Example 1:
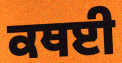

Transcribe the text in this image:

ਕਥਈ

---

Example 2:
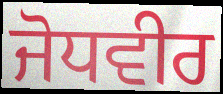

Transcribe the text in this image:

ਜੋਧਵੀਰ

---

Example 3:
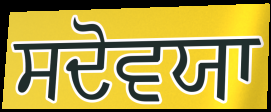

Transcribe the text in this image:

ਸਦੋਵਯਾ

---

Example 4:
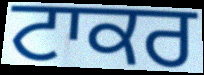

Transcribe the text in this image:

ਟਾਕਰ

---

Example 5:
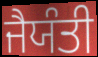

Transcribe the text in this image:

ਜੈਯੰਤੀ